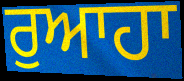
ਰੁਆਹਾ